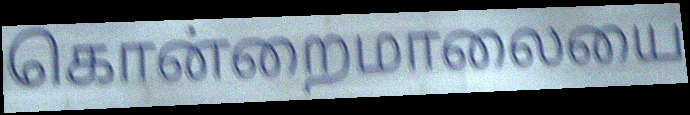
கொன்றைமாலையை